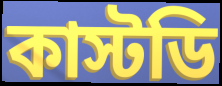
কাস্টডি